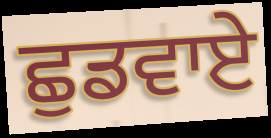
ਛੁਡਵਾਏ